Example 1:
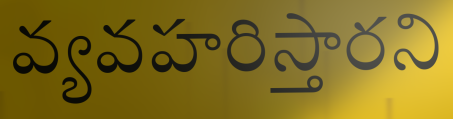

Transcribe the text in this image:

వ్యవహరిస్తారని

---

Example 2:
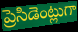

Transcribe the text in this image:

ప్రెసిడెంట్లుగా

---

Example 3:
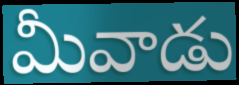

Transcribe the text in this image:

మీవాడు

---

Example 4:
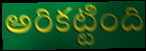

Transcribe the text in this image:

అరికట్టింది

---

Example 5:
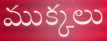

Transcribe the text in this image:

ముక్కలు